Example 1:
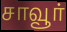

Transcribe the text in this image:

சாவூர்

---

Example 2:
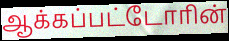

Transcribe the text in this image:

ஆக்கப்பட்டோரின்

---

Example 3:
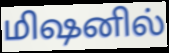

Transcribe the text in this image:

மிஷனில்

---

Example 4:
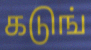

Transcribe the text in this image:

கடுங்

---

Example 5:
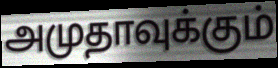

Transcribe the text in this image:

அமுதாவுக்கும்